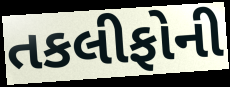
તકલીફોની